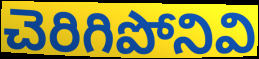
చెరిగిపోనివి